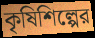
কৃষিশিল্পের